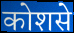
कोशसे